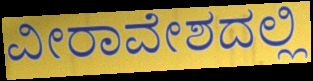
ವೀರಾವೇಶದಲ್ಲಿ